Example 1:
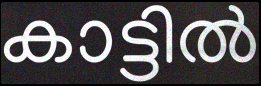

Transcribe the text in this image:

കാട്ടിൽ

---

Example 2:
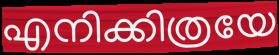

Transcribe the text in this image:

എനിക്കിത്രയേ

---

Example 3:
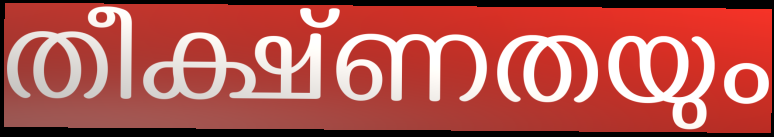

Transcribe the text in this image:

തീക്ഷ്‌ണതയും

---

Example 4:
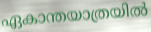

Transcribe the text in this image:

ഏകാന്തയാത്രയിൽ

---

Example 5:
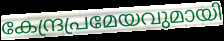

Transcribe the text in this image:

കേന്ദ്രപ്രമേയവുമായി